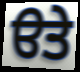
ੳਤੇ